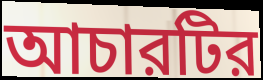
আচারটির